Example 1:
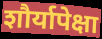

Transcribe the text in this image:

शौर्यापेक्षा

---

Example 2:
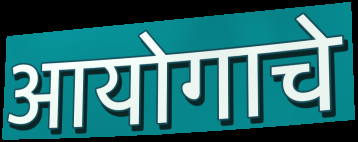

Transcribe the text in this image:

आयोगाचे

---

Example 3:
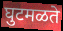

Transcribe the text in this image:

घुटमळते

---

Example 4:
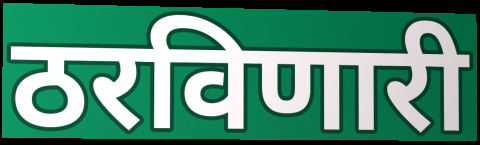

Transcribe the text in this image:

ठरविणारी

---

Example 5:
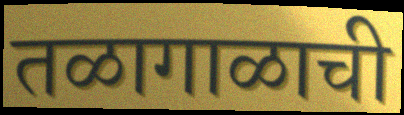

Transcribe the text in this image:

तळागाळाची